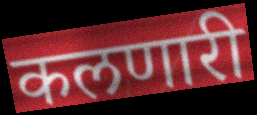
कलणारी